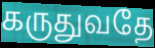
கருதுவதே